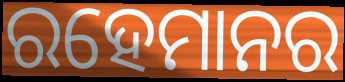
ରହେମାନର